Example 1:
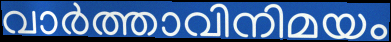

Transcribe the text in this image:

വാർത്താവിനിമയം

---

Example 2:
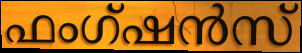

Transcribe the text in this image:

ഫംഗ്ഷൻസ്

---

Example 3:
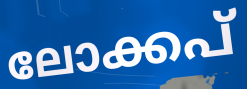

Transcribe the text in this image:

ലോക്കപ്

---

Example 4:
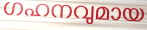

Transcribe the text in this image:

ഗഹനവുമായ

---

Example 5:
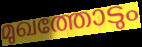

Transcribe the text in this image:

മുഖത്തോടും